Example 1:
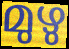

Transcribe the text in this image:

മുഴു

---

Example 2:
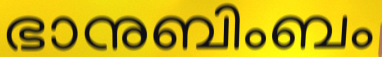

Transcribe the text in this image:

ഭാനുബിംബം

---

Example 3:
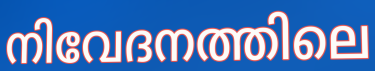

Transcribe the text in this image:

നിവേദനത്തിലെ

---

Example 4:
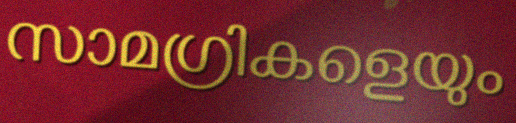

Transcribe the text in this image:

സാമഗ്രികളെയും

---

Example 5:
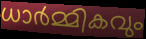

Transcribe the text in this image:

ധാർമ്മികവും